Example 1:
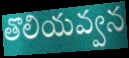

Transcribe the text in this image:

తొలియవ్వన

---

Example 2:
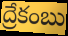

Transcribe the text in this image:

ద్రేకంబు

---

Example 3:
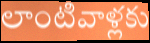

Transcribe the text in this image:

లాంటివాళ్లకు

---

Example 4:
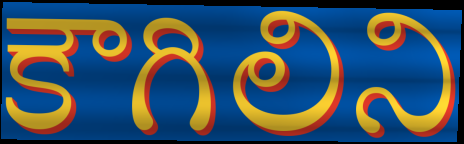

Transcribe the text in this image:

కౌగిలిని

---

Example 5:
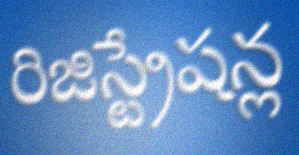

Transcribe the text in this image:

రిజిస్ట్రేషన్ల